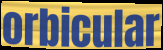
orbicular